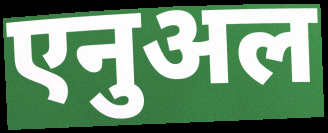
एनुअल